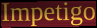
Impetigo